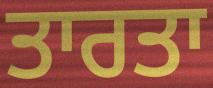
ਤਾਰਤਾ